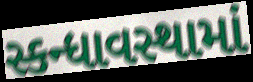
સ્કન્ધાવસ્થામાં